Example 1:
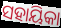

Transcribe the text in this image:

ସହାୟିକା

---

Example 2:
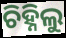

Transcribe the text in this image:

ଚିହ୍ନିଲୁ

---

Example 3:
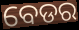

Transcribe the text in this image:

ବେଡର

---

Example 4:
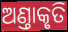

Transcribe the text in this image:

ଅଣ୍ତାକୃତି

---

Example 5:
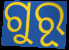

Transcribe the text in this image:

ଗୁରୂ